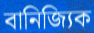
বানিজ্যিক